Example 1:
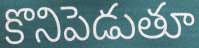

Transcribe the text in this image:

కొనిపెడుతూ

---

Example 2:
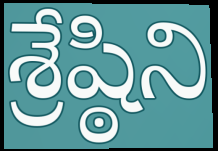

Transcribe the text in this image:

శ్రేష్ఠిని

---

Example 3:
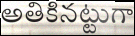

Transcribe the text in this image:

అతికినట్టుగా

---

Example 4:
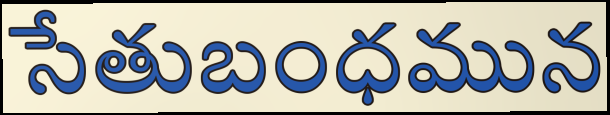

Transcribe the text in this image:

సేతుబంధమున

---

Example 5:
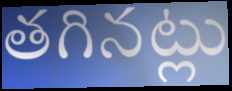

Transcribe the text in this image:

తగినట్లు